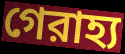
গেরাহ্য